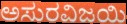
ಅಸುರವಿಜಯಿ